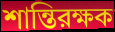
শান্তিরক্ষক